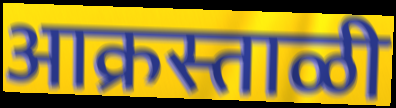
आक्रस्ताळी